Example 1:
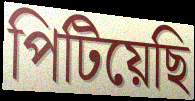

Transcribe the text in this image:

পিটিয়েছি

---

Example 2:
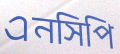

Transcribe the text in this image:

এনসিপি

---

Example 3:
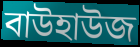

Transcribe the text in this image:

বাউহাউজ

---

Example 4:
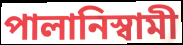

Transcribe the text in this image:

পালানিস্বামী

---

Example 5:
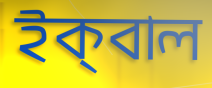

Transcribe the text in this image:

ইক্‌বাল